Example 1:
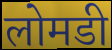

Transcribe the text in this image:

लोमडी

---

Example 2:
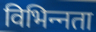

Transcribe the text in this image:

विभिन्‍नता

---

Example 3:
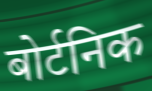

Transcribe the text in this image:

बोर्टनिक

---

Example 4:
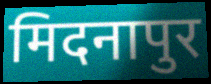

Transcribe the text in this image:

मिदनापुर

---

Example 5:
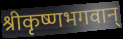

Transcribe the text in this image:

श्रीकृष्णभगवान्